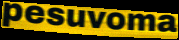
pesuvoma